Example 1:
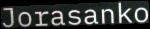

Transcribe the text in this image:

Jorasanko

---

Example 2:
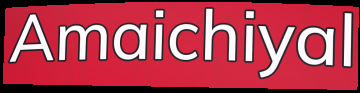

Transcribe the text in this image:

Amaichiyal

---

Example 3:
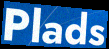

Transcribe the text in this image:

Plads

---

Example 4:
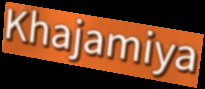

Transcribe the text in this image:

Khajamiya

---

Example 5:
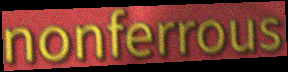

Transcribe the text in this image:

nonferrous